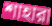
শাহারা